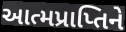
આત્મપ્રાપ્તિને